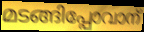
മടങ്ങിപ്പോവാന്